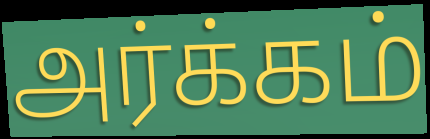
அர்க்கம்